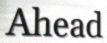
Ahead